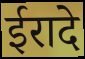
ईरादे